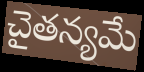
చైతన్యమే